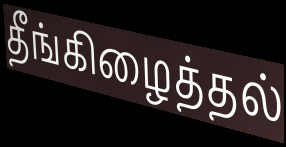
தீங்கிழைத்தல்